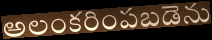
అలంకరింపబడెను